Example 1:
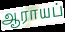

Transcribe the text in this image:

ஆராயப்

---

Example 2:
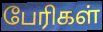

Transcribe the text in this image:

பேரிகள்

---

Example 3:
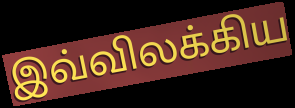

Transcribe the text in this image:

இவ்விலக்கிய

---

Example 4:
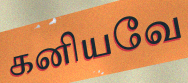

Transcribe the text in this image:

கனியவே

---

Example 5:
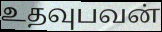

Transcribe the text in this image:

உதவுபவன்